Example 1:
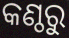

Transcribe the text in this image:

କଣ୍ଠରୁ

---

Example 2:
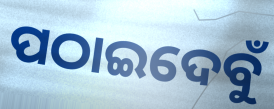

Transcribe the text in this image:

ପଠାଇଦେବୁଁ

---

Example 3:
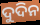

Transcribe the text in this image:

ଦୁଦିନ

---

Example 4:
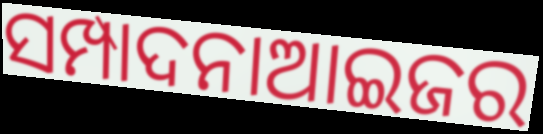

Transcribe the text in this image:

ସମ୍ପାଦନାଆଇଜର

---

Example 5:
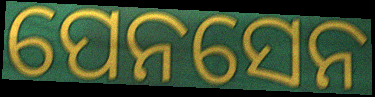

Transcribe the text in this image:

ପେନସେନ